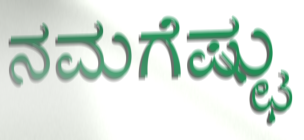
ನಮಗೆಷ್ಟು